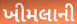
ખીમલાની